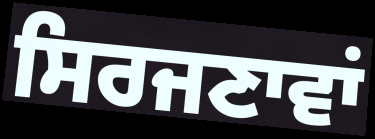
ਸਿਰਜਣਾਵਾਂ